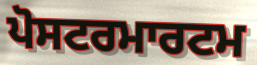
ਪੋਸਟਰਮਾਰਟਮ